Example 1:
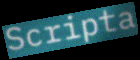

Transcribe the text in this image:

Scripta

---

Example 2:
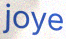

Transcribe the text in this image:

joye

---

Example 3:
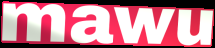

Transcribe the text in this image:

mawu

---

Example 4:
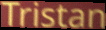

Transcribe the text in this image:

Tristan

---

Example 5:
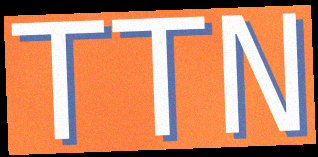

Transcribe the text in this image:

TTN